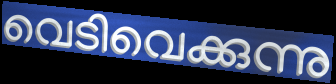
വെടിവെക്കുന്നു